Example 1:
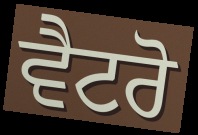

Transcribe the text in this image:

ਵੈਟਰੋ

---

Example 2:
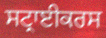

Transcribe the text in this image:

ਸਟ੍ਰਾਈਕਰਸ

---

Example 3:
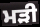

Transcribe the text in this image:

ਮੜੀ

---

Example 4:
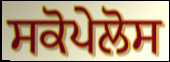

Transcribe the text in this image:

ਸਕੋਪੇਲੋਸ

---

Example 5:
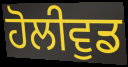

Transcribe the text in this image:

ਹੋਲੀਵੁਡ